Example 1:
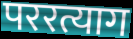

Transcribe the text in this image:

पररत्याग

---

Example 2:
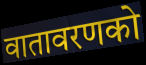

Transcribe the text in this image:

वातावरणको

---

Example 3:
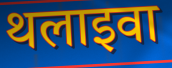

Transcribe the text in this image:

थलाइवा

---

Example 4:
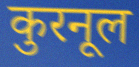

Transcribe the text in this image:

कुरनूल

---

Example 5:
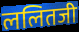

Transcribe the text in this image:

ललितजी